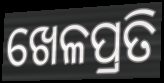
ଖେଳପ୍ରତି